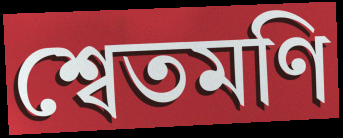
শ্বেতমণি